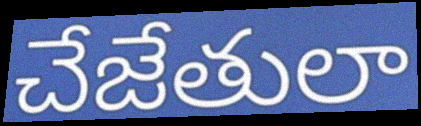
చేజేతులా